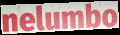
nelumbo